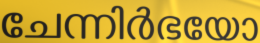
ചേന്നിർഭയോ